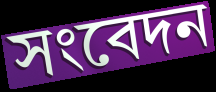
সংবেদন